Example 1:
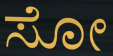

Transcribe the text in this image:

ಸೋ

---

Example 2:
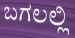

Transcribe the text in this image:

ಬಗಲಲ್ಲಿ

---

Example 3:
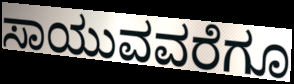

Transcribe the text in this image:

ಸಾಯುವವರೆಗೂ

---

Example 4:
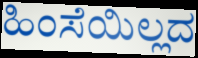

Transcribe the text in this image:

ಹಿಂಸೆಯಿಲ್ಲದ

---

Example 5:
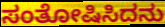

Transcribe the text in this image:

ಸಂತೋಷಿಸಿದನು